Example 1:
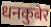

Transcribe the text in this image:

धनकुबेर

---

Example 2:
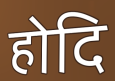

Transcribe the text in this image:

होदि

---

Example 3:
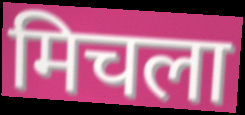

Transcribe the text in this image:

मिचला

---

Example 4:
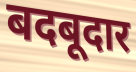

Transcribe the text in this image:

बदबूदार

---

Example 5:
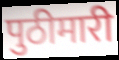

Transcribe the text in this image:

पुठीमारी